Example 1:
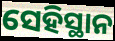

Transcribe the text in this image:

ସେହିସ୍ଥାନ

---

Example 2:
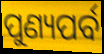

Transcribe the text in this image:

ପୁଣ୍ୟପର୍ବ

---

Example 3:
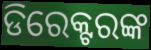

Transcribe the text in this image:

ଡିରେକ୍ଟରଙ୍କ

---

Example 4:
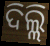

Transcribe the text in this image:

ଦିଲ୍ଲି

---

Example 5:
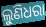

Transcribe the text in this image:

ଲୁଣିଧରା